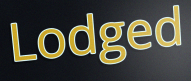
Lodged